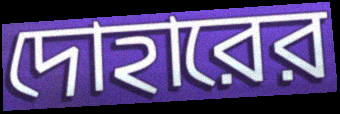
দোহারের